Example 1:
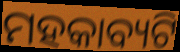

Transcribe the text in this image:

ମହକାବ୍ୟଟି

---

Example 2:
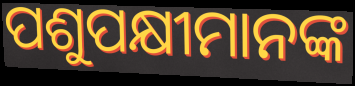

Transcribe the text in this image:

ପଶୁପକ୍ଷୀମାନଙ୍କ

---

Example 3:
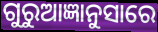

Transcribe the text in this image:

ଗୁରୁଆଜ୍ଞାନୁସାରେ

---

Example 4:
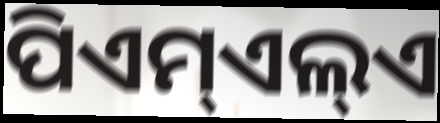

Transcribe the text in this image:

ପିଏମ୍ଏଲ୍ଏ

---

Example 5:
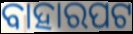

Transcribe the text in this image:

ବାହାରପଟ